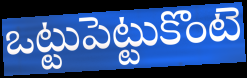
ఒట్టుపెట్టుకొంటె